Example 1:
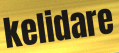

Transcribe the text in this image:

kelidare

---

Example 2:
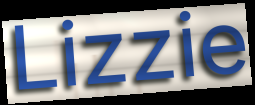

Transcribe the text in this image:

Lizzie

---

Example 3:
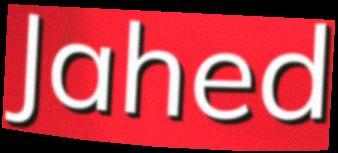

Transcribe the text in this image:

Jahed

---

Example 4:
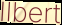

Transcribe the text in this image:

Ilbert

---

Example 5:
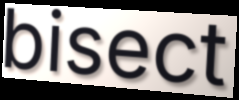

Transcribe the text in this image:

bisect